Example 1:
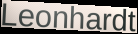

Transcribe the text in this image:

Leonhardt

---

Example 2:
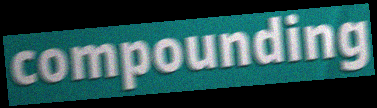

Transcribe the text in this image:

compounding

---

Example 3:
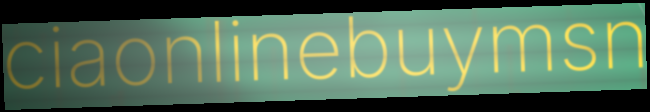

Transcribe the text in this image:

ciaonlinebuymsn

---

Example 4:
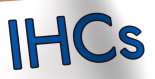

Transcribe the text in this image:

IHCs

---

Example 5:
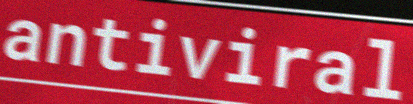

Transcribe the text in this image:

antiviral